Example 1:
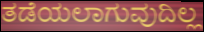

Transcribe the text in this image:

ತಡೆಯಲಾಗುವುದಿಲ್ಲ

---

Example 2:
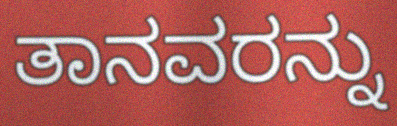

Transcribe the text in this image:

ತಾನವರನ್ನು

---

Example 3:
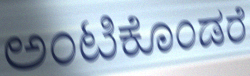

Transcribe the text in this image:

ಅಂಟಿಕೊಂಡರೆ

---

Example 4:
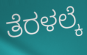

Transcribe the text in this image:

ತೆರಳಲ್ಕೆ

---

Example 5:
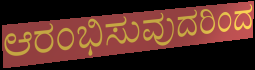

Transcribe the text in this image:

ಆರಂಭಿಸುವುದರಿಂದ